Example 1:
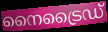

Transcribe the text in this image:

നൈട്രൈഡ്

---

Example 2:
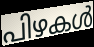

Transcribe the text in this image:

പിഴകൾ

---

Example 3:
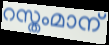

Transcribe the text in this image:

റസ്തംമാന്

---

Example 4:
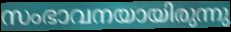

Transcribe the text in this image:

സംഭാവനയായിരുന്നു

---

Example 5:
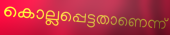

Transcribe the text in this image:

കൊല്ലപ്പെട്ടതാണെന്ന്